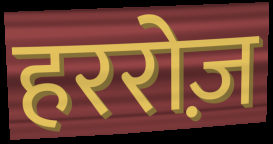
हररोज़